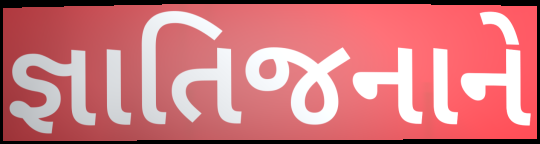
જ્ઞાતિજનાને